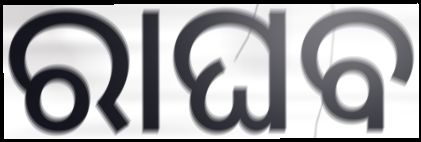
ରାଘବ